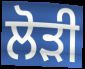
ਲੋੜੀ